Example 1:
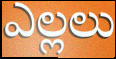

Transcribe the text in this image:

ఎల్లలు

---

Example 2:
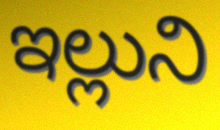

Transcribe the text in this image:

ఇల్లుని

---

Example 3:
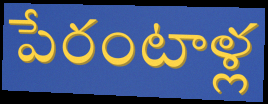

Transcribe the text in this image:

పేరంటాళ్ల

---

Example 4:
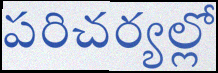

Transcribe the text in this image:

పరిచర్యల్లో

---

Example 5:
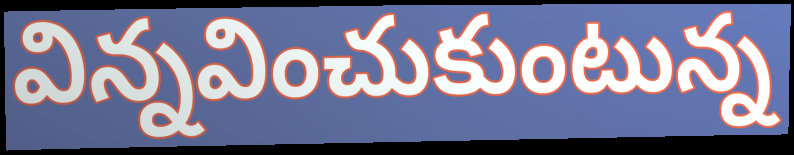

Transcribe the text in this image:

విన్నవించుకుంటున్న